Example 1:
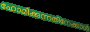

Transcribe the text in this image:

ഹോമിക്കുന്നതിനേക്കാൾ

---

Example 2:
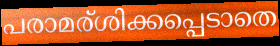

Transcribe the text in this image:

പരാമര്ശിക്കപ്പെടാതെ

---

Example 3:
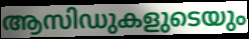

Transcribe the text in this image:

ആസിഡുകളുടെയും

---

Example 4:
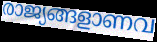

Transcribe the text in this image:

രാജ്യങ്ങളാണവ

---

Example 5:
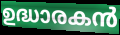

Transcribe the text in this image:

ഉദ്ധാരകൻ